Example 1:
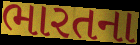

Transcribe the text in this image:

ભારતના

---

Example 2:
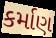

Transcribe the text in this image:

કર્માણ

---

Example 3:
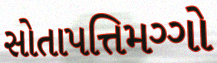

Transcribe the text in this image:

સોતાપત્તિમગ્ગો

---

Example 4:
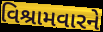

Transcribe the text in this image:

વિશ્રામવારને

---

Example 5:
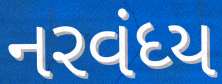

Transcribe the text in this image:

નરવંધ્ય